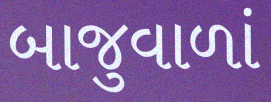
બાજુવાળાં